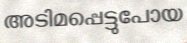
അടിമപ്പെട്ടുപോയ